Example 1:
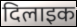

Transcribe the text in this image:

दिलाइक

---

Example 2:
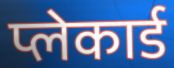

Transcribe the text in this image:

प्लेकार्ड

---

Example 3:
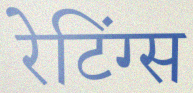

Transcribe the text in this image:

रेटिंग्स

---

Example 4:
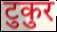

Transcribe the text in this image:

टुकुर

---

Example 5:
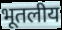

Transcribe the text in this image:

भूतलीय